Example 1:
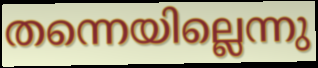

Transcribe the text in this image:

തന്നെയില്ലെന്നു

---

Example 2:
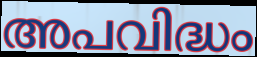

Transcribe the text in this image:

അപവിദ്ധം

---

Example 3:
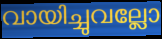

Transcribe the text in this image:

വായിച്ചുവല്ലോ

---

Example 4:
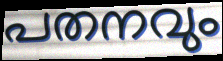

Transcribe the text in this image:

പതനവും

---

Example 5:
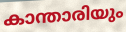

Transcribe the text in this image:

കാന്താരിയും